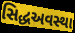
સિદ્ધઅવસ્થા